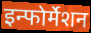
इन्फोर्मेशन